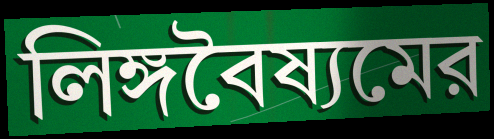
লিঙ্গবৈষ্যমের